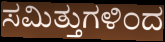
ಸಮಿತ್ತುಗಳಿಂದ